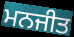
ਮਨਜੀਤ